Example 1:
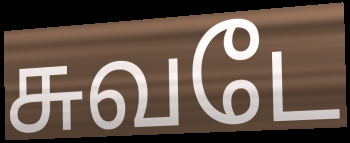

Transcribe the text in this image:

சுவடே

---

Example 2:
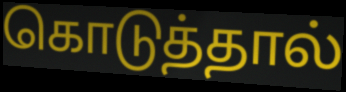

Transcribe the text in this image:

கொடுத்தால்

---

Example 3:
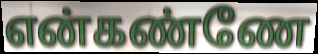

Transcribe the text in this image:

என்கண்ணே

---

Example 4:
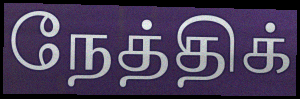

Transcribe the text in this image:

நேத்திக்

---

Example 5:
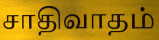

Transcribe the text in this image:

சாதிவாதம்